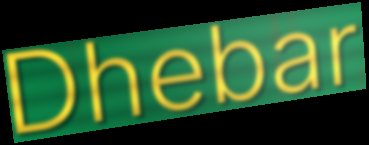
Dhebar